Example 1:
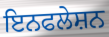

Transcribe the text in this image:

ਇਨਫਲੇਸ਼ਨ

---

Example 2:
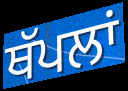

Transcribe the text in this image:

ਥੱਪਲਾਂ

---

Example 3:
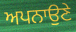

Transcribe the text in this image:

ਅਪਨਾਉਣੇ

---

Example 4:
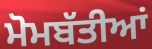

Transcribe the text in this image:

ਮੋਮਬੱਤੀਆਂ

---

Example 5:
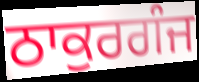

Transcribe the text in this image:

ਠਾਕੁਰਗੰਜ